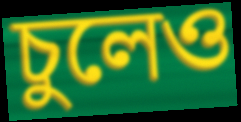
চুলেও